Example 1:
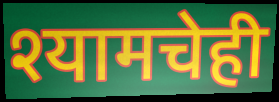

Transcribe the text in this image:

श्यामचेही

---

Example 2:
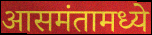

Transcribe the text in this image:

आसमंतामध्ये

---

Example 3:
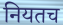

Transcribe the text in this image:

नियतच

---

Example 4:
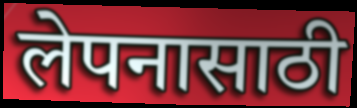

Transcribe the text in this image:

लेपनासाठी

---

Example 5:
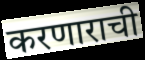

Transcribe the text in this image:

करणाराची